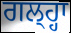
ਗਲ੍ਹ੍ਹਾ